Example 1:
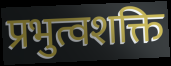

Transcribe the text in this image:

प्रभुत्वशक्ति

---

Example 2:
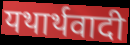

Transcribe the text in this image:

यथार्थवादी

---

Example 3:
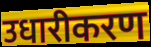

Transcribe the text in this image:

उधारीकरण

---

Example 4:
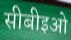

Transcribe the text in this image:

सीबीइओ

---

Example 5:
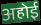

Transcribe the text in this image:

अहोई